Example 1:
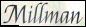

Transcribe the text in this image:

Millman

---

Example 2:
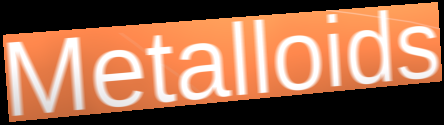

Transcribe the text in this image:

Metalloids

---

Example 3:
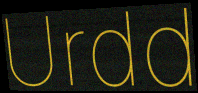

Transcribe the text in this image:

Urdd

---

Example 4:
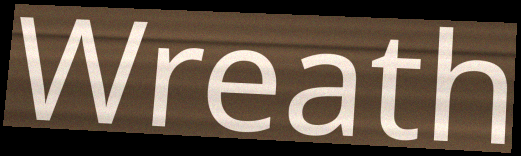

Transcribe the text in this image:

Wreath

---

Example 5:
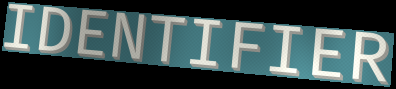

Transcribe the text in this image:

IDENTIFIER